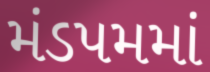
મંડપમમાં